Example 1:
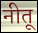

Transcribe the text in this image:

नीतू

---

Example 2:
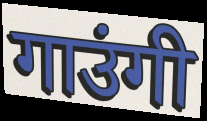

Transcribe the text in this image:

गाउंगी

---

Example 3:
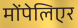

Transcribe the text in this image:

मोंपेलिएर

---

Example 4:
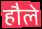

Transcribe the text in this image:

हौले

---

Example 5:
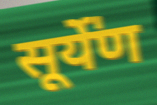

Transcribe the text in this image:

सूर्ये॑ण